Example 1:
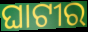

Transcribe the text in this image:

ଘାଟୀର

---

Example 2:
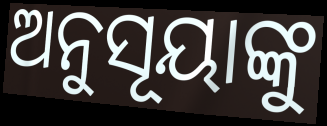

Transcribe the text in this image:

ଅନୁସୂୟାଙ୍କୁ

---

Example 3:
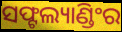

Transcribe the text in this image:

ସଫ୍ଟଲ୍ୟାଣ୍ଡିଂର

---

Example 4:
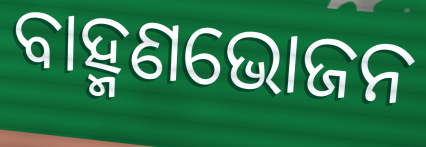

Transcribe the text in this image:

ବାହ୍ମଣଭୋଜନ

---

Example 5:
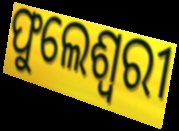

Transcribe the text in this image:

ଫୁଲେଶ୍ବରୀ